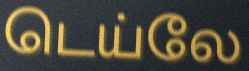
டெய்லே